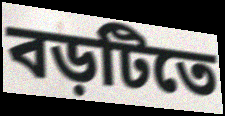
বড়টিতে